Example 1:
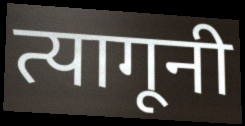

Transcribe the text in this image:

त्यागूनी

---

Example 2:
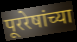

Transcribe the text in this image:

पूररेषांच्या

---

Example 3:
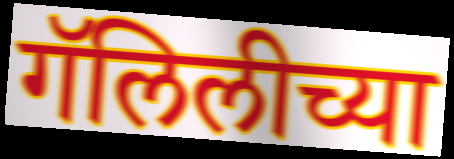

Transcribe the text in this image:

गॅलिलीच्या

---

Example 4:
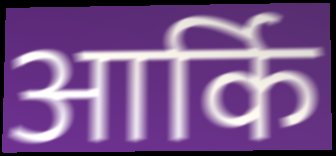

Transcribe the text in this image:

आर्कि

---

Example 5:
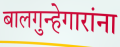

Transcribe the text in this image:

बालगुन्हेगारांना